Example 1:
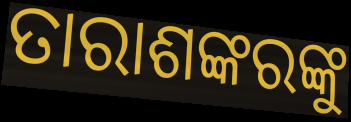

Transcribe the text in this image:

ତାରାଶଙ୍କରଙ୍କୁ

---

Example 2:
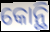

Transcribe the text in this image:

କୋନ୍ଥି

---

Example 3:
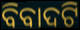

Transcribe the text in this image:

ବିବାଦଟି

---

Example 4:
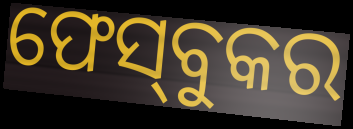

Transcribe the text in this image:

ଫେସ୍‌ବୁକର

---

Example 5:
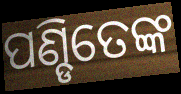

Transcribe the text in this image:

ପଣ୍ଡିତେଙ୍କ